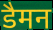
डैमन